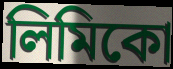
লিমিকো